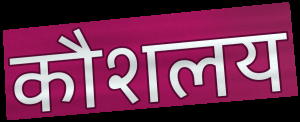
कौशलय